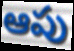
ఆపు